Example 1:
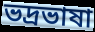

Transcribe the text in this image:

ভদ্রভাষা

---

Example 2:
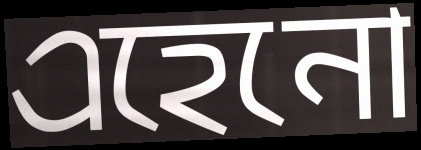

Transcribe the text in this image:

এহেনো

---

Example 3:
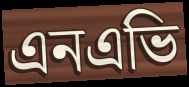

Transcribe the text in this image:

এনএভি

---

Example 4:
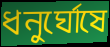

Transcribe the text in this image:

ধনুর্ঘোষে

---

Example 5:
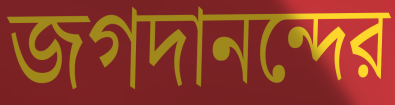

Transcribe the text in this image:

জগদানন্দের